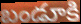
బండూకి